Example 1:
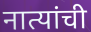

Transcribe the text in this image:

नात्यांची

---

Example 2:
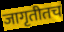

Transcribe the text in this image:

जागृतीतच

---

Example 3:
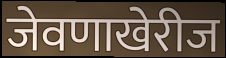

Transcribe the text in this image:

जेवणाखेरीज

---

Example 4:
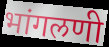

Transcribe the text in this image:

भांगलणी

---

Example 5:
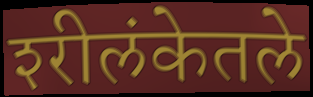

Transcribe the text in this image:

श्रीलंकेतले